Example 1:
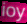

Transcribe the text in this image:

ioy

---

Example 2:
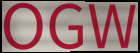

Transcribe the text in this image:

OGW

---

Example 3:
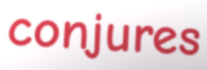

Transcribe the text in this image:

conjures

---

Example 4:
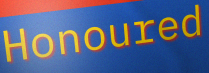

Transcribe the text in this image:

Honoured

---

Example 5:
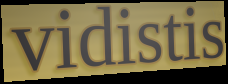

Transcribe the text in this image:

vidistis